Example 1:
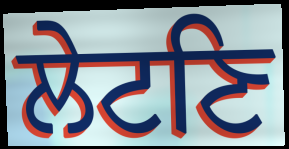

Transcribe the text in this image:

ਲੇਟਣਿ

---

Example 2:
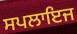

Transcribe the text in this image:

ਸਪਲਾਇਜ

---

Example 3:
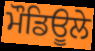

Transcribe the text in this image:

ਮੌਡਿਊਲੇ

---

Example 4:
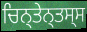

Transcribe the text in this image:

ਚਿਨ੍ਤੇਨ੍ਤਸ੍ਸ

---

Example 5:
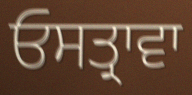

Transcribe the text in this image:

ਓਸਤ੍ਰਾਵਾ